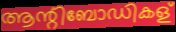
ആന്റിബോഡികള്